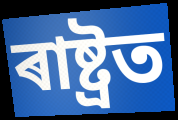
ৰাষ্ট্ৰত